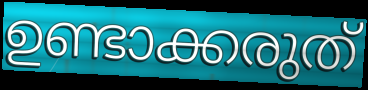
ഉണ്ടാക്കരുത്